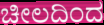
ಚೀಲದಿಂದ